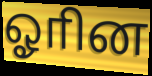
ஓரின